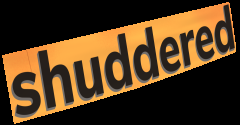
shuddered